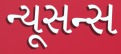
ન્યૂસન્સ